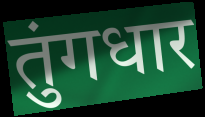
तुंगधार